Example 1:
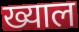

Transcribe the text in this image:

ख्याल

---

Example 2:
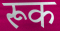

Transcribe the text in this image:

रूक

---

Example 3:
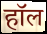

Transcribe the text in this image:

हॉल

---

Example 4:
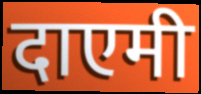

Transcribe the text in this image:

दाएमी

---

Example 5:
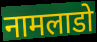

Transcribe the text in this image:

नामलाडो